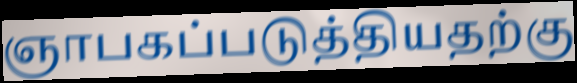
ஞாபகப்படுத்தியதற்கு